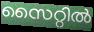
സൈറ്റിൽ